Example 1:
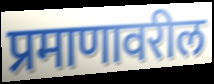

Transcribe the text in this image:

प्रमाणावरील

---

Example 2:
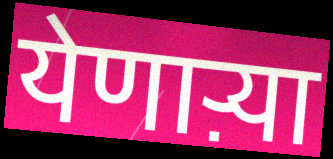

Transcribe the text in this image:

येणाऱ्‍या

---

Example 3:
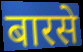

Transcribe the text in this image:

बारसे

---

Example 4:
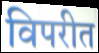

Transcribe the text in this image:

विपरीत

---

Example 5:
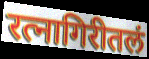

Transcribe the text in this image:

रत्नागिरीतलं